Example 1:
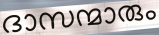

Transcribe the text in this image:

ദാസന്മാരും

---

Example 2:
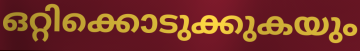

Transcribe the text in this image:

ഒറ്റിക്കൊടുക്കുകയും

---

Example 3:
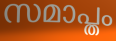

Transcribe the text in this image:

സമാപ്തം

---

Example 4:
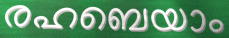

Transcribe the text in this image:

രഹബെയാം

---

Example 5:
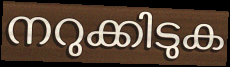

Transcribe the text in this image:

നറുക്കിടുക